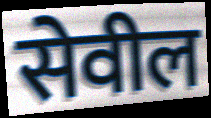
सेवील